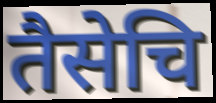
तैसेचि